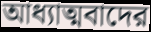
আধ্যাত্মবাদের